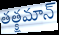
తత్క్షమాన్